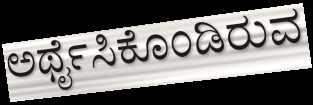
ಅರ್ಥೈಸಿಕೊಂಡಿರುವ